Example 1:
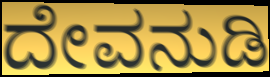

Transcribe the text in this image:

ದೇವನುಡಿ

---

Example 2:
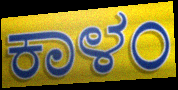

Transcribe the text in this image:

ಕಾಳಂ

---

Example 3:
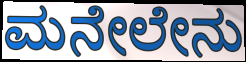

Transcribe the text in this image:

ಮನೇಲೇನು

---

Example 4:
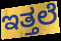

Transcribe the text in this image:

ಇತ್ತಲೆ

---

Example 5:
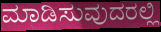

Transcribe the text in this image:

ಮಾಡಿಸುವುದರಲ್ಲಿ